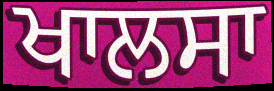
ਖਾਲਸਾ